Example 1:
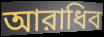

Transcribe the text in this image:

আরাধিব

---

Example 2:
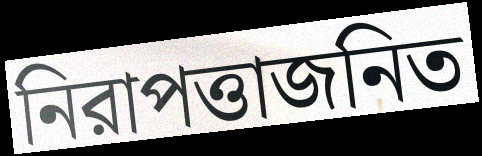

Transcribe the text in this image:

নিরাপত্তাজনিত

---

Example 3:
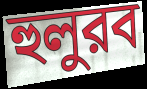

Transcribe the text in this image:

হুলুরব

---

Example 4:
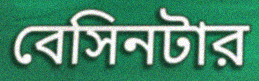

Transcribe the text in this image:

বেসিনটার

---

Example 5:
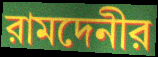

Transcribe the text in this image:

রামদেনীর